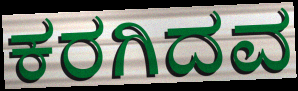
ಕರಗಿದವ